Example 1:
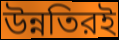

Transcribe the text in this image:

উন্নতিরই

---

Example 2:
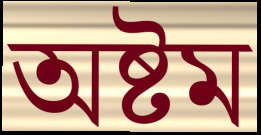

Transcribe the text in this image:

অষ্টম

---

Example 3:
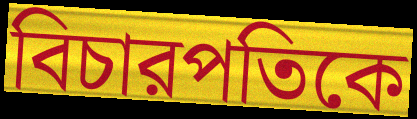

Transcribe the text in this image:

বিচারপতিকে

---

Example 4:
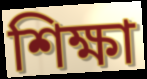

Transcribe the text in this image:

শিক্ষা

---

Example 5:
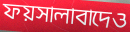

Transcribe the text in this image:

ফয়সালাবাদেও